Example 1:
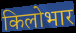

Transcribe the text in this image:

किलोभार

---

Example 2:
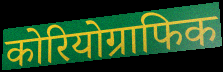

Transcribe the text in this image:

कोरियोग्राफिक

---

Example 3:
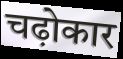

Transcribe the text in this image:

चढ़ोकार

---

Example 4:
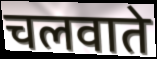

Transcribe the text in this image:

चलवाते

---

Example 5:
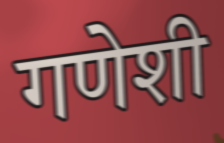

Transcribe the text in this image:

गणेशी